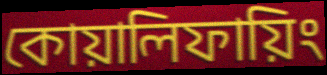
কোয়ালিফায়িং